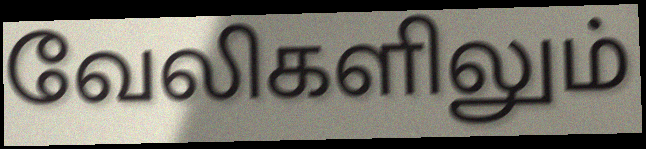
வேலிகளிலும்